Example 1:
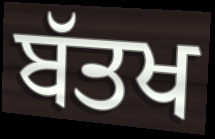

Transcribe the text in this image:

ਬੱਤਖ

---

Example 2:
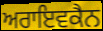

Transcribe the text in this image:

ਅਰਾਇਵਕੈਨ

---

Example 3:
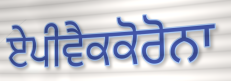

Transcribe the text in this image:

ਏਪੀਵੈਕਕੋਰੋਨਾ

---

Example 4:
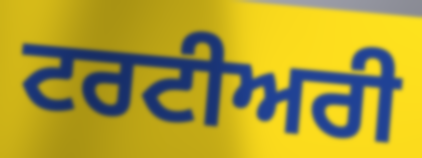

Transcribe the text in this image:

ਟਰਟੀਅਰੀ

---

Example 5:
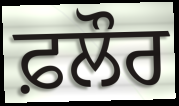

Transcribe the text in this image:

ਫ਼ਲੌਰ